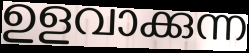
ഉളവാക്കുന്ന